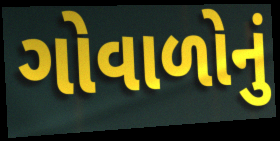
ગોવાળોનું